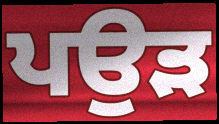
ਪਉੜ